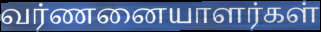
வர்ணனையாளர்கள்